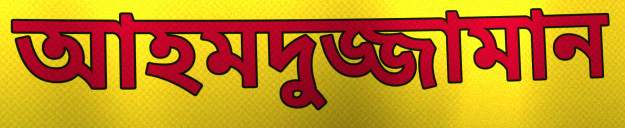
আহমদুজ্জামান